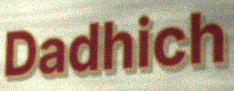
Dadhich